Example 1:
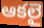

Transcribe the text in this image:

ఆకలై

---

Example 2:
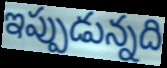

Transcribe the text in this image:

ఇప్పుడున్నది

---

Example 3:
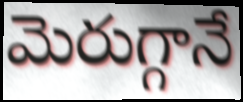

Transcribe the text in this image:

మెరుగ్గానే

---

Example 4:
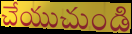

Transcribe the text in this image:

చేయుచుండి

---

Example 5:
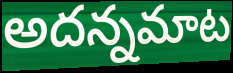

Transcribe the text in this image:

అదన్నమాట